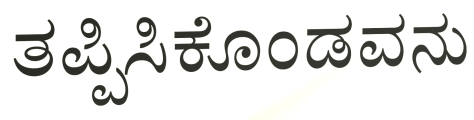
ತಪ್ಪಿಸಿಕೊಂಡವನು